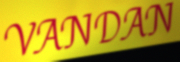
VANDAN